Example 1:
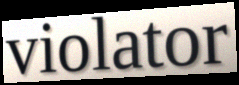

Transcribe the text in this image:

violator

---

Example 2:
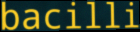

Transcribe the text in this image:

bacilli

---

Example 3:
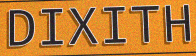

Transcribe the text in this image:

DIXITH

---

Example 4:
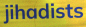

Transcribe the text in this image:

jihadists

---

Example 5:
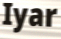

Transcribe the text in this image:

Iyar